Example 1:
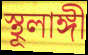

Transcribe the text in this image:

স্থূলাঙ্গী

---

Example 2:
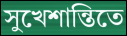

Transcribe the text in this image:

সুখেশান্তিতে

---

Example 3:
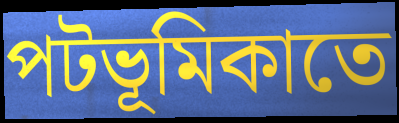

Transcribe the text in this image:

পটভূমিকাতে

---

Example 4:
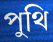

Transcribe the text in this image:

পুথি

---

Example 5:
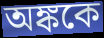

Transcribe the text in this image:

অঙ্ককে